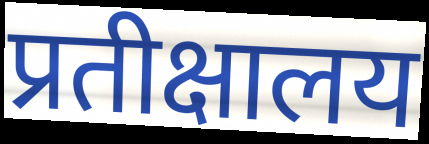
प्रतीक्षालय